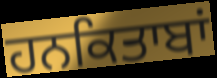
ਹਨਕਿਤਾਬਾਂ